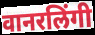
वानरलिंगी